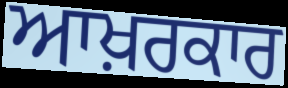
ਆਖ਼ਰਕਾਰ